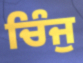
ਚਿੰਜੁ